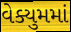
વેક્યુમમાં